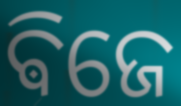
ଵିଜେ